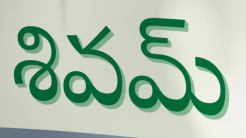
శివమ్